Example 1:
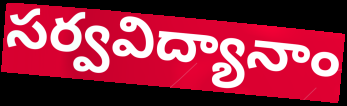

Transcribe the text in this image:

సర్వవిద్యానాం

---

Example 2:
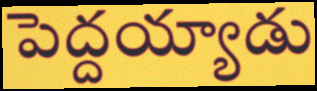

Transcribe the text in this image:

పెద్దయ్యాడు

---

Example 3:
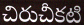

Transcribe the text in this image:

చిరుచీకటి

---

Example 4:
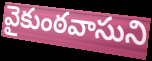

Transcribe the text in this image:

వైకుంఠవాసుని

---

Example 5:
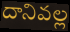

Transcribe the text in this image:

దానివల్ల